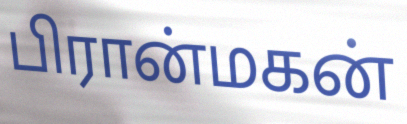
பிரான்மகன்